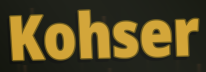
Kohser